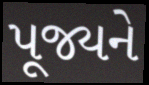
પૂજ્યને